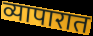
व्यापारात